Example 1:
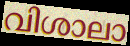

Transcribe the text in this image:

വിശാലാ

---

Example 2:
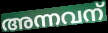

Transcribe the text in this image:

അന്നവന്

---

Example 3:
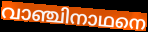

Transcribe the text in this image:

വാഞ്ചിനാഥനെ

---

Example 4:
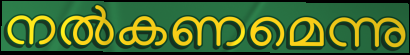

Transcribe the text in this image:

നൽകണമെന്നു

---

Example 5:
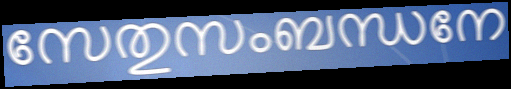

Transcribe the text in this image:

സേതുസംബന്ധനേ